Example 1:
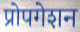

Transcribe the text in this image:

प्रोपगेशन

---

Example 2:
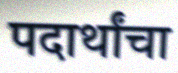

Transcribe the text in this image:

पदार्थांचा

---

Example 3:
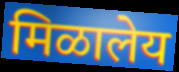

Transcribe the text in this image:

मिळालेय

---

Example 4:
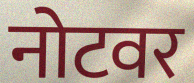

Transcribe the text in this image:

नोटवर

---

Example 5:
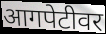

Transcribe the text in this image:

आगपेटीवर